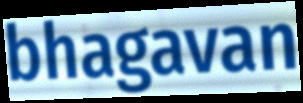
bhagavan